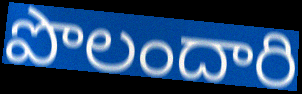
పొలందారి